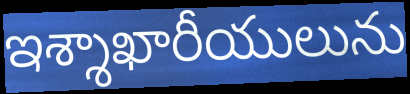
ఇశ్శాఖారీయులును